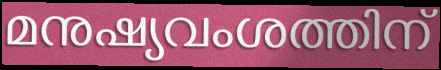
മനുഷ്യവംശത്തിന്